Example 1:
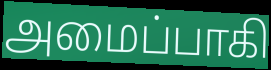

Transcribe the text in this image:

அமைப்பாகி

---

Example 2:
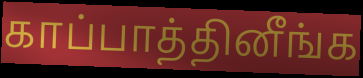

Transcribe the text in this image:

காப்பாத்தினீங்க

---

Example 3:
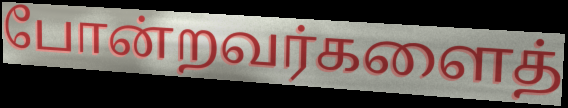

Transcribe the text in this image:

போன்றவர்களைத்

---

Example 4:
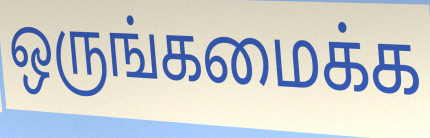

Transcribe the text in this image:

ஒருங்கமைக்க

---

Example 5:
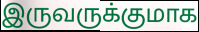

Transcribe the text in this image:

இருவருக்குமாக